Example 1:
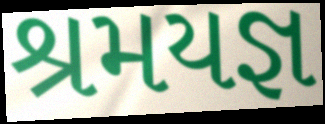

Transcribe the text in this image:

શ્રમયજ્ઞ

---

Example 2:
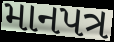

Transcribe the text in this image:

માનપત્ર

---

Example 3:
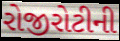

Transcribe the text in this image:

રોજીરોટીની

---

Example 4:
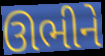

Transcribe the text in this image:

ઊભીને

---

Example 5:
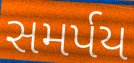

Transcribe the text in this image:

સમર્પય